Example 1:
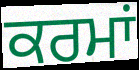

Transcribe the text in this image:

ਕਰਮਾਂ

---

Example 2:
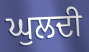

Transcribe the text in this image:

ਘੁਲਦੀ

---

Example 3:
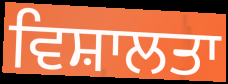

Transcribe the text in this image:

ਵਿਸ਼ਾਲਤਾ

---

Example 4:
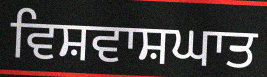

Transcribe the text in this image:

ਵਿਸ਼ਵਾਸ਼ਘਾਤ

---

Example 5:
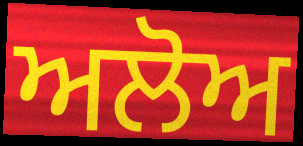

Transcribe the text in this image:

ਅਲੋਅ